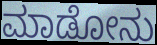
ಮಾಡೋನು